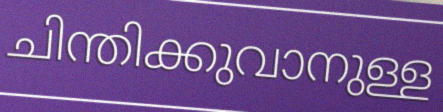
ചിന്തിക്കുവാനുള്ള